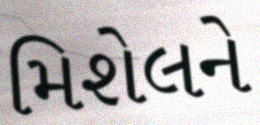
મિશેલને